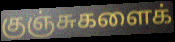
குஞ்சுகளைக்